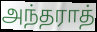
அந்தராத்